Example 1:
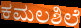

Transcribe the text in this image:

ಕಮಲಶಿಲೆ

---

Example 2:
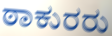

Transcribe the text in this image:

ಠಾಕುರರು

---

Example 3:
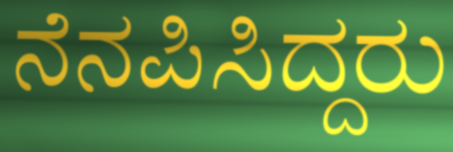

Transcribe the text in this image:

ನೆನಪಿಸಿದ್ದರು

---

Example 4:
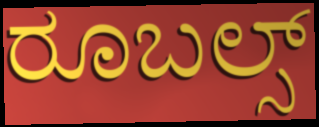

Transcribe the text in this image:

ರೂಬಲ್ಸ್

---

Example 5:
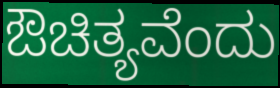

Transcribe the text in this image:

ಔಚಿತ್ಯವೆಂದು